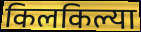
किलकिल्या